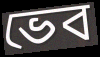
ভেব